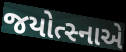
જયોત્સ્નાએ